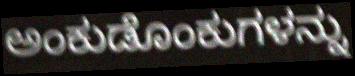
ಅಂಕುಡೊಂಕುಗಳನ್ನು